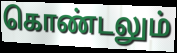
கொண்டலும்